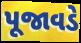
પૂજાવડે